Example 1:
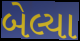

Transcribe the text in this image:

બેલ્યા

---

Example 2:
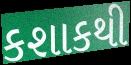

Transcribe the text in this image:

કશાકથી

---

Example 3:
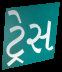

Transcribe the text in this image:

ટ્રેસ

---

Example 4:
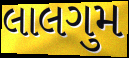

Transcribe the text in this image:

લાલગુમ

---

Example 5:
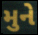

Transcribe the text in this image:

મુને